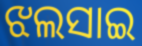
ଝଲସାଇ